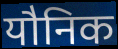
यौनिक